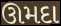
ઊમદા